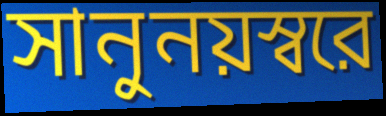
সানুনয়স্বরে